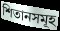
শিতানসমূহ